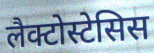
लैक्टोस्टेसिस